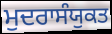
ਮੁਦਰਾਸੰਯੁਕਤ